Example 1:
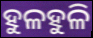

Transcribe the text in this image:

ହୁଳହୁଳି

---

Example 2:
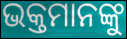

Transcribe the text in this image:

ଭକ୍ତମାନଙ୍କୁ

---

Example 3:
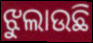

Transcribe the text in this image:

ଝୁଲାଉଛି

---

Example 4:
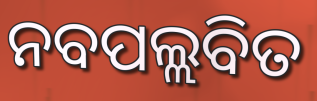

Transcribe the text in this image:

ନବପଲ୍ଲବିତ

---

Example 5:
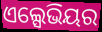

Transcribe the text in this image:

ଏଲ୍ସେଭିୟର